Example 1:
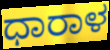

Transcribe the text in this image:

ಧಾರಾಳ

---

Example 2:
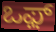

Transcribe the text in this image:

ಒಫ಼್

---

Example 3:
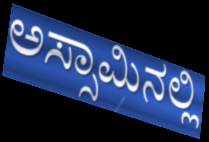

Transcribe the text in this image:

ಅಸ್ಸಾಮಿನಲ್ಲಿ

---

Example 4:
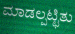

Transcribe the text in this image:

ಮಾಡಲ್ಪಟ್ಟಿತು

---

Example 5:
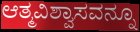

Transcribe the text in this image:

ಆತ್ಮವಿಶ್ವಾಸವನ್ನೂ